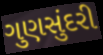
ગુણસુંદરી